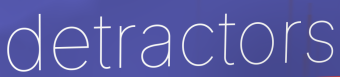
detractors